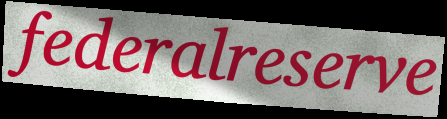
federalreserve